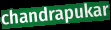
chandrapukar